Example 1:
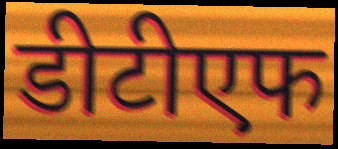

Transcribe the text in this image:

डीटीएफ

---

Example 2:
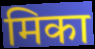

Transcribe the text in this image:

मिका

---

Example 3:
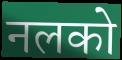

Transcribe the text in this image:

नलको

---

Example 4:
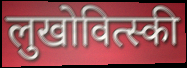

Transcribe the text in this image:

लुखोवित्स्की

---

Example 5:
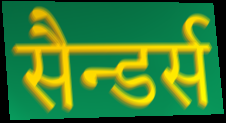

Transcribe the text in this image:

सैन्डर्स